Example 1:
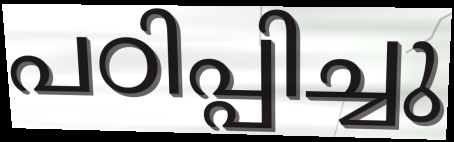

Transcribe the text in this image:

പഠിപ്പിച്ചു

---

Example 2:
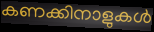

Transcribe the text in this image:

കണക്കിനാളുകൾ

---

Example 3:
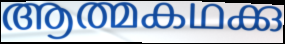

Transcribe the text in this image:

ആത്മകഥക്കു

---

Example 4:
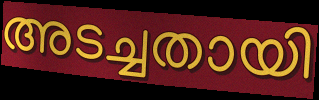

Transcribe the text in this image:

അടച്ചതായി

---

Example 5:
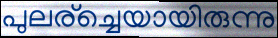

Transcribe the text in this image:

പുലര്ച്ചെയായിരുന്നു